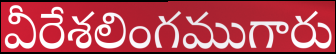
వీరేశలింగముగారు